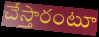
చేస్తారంటూ